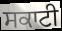
ਸਕਾਟੀ